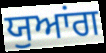
ਯੁਆਂਗ